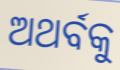
ଅଥର୍ବକୁ